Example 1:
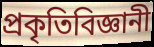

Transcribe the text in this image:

প্রকৃতিবিজ্ঞানী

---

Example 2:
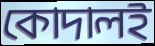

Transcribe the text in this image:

কোদালই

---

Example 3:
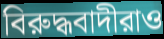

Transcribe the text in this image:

বিরুদ্ধবাদীরাও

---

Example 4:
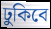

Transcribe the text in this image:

ঢুকিবে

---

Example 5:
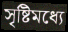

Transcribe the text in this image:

সৃষ্টিমধ্যে